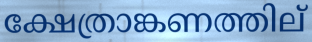
ക്ഷേത്രാങ്കണത്തില്